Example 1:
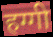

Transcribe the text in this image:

हग्गी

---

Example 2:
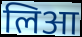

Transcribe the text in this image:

लिआ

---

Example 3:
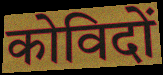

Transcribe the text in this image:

कोविदों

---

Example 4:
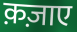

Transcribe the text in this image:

क़ज़ाए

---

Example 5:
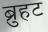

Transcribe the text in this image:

ब्रुहट